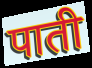
पाती